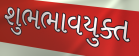
શુભભાવયુક્ત